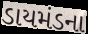
ડાયમંડના